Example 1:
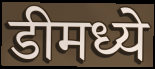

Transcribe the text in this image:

डीमध्ये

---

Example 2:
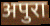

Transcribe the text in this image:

अपुरा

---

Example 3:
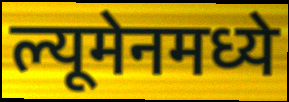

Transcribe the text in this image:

ल्यूमेनमध्ये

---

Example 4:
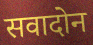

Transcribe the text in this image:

सवादोन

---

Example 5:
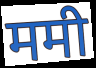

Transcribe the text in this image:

ममी